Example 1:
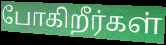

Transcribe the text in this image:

போகிறீர்கள்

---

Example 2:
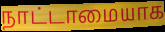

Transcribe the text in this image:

நாட்டாமையாக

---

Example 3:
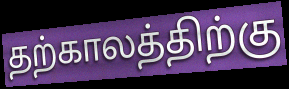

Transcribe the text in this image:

தற்காலத்திற்கு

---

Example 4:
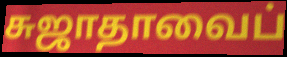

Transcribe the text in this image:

சுஜாதாவைப்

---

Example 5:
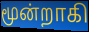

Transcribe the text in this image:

மூன்றாகி